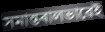
সমান্তৰালভাৱেই